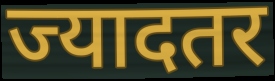
ज्यादतर